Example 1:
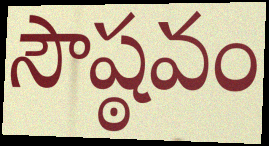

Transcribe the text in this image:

సౌష్ఠవం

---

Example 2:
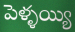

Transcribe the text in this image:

పెళ్ళయ్యి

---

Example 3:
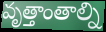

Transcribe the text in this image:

వృత్తాంతాల్ని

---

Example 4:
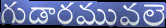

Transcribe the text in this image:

గుడారమువలె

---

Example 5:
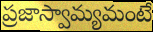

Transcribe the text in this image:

ప్రజాస్వామ్యమంటే